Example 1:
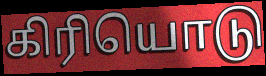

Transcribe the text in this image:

கிரியொடு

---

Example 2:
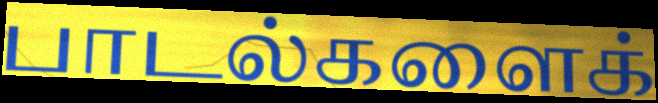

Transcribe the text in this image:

பாடல்களைக்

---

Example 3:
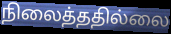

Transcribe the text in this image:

நிலைத்ததில்லை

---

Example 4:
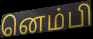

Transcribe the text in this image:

னெம்பி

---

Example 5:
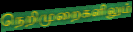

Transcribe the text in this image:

நெறிமுறைகளிலும்